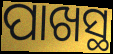
ପାଖସ୍ଥ